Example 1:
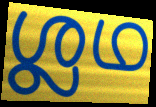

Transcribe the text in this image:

ശ്ലഥ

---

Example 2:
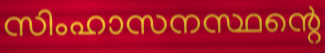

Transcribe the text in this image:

സിംഹാസനസ്ഥന്റെ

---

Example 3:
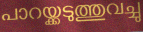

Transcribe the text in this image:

പാറയ്ക്കടുത്തുവച്ചു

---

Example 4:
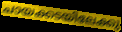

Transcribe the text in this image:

ചായക്കടയിലേക്കു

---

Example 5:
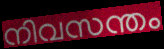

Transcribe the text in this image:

നിവസന്തം